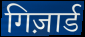
गिज़ार्ड